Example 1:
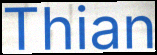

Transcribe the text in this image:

Thian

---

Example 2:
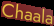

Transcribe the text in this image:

Chaala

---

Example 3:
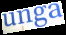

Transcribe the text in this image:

unga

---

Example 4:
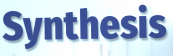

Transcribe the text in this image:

Synthesis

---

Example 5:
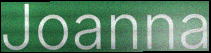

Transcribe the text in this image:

Joanna